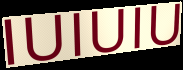
IUIUIU